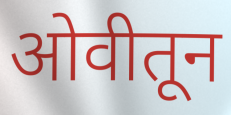
ओवीतून